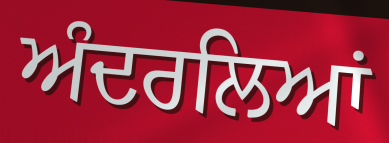
ਅੰਦਰਲਿਆਂ